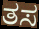
ತಸ